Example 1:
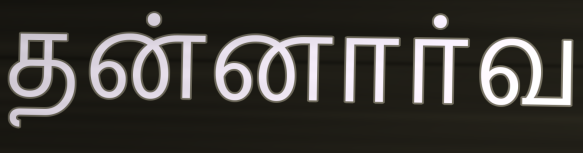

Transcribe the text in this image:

தன்னார்வ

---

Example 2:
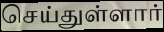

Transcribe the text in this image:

செய்துள்ளார்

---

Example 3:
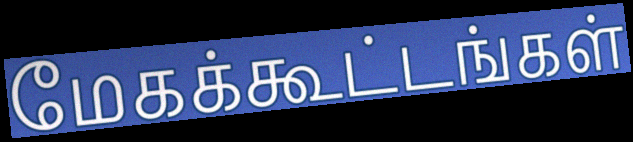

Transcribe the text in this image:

மேகக்கூட்டங்கள்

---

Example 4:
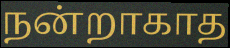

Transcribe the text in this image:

நன்றாகாத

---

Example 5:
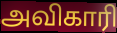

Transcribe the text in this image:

அவிகாரி